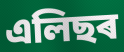
এলিছৰ